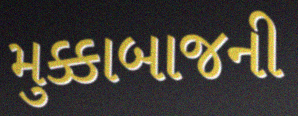
મુક્કાબાજની